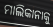
ମାଲିକାନାକୁ